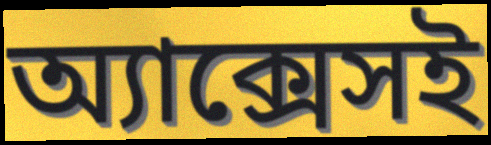
অ্যাক্সেসই